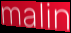
malin